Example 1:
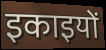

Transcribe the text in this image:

इकाइयों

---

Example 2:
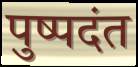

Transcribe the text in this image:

पुष्पदंत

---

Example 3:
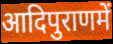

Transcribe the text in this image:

आदिपुराणमें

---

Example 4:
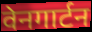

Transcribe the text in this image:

वेनगार्टन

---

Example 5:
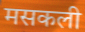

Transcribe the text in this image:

मसकली